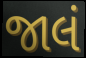
જાલં